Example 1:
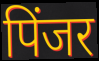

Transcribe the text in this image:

पिंजर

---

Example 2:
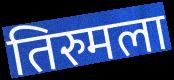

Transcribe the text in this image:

तिरुमला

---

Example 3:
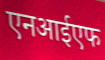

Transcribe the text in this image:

एनआईएफ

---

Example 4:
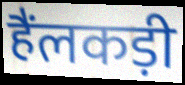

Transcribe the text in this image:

हैंलकड़ी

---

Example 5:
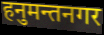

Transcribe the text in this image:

हनुमन्तनगर